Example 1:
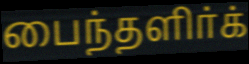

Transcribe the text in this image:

பைந்தளிர்க்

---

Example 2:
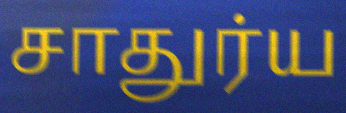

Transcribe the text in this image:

சாதுர்ய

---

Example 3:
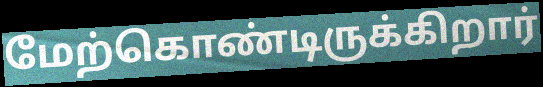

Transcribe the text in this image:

மேற்கொண்டிருக்கிறார்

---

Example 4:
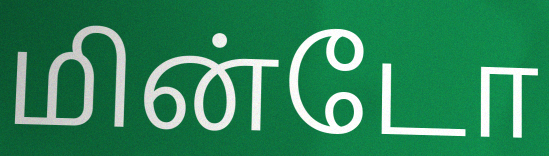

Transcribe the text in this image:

மின்டோ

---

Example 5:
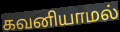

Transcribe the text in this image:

கவனியாமல்